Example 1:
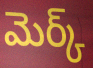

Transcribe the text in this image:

మెర్క్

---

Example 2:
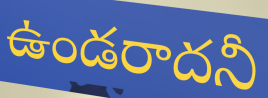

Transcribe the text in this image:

ఉండరాదనీ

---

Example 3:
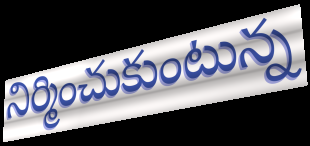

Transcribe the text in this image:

నిర్మించుకుంటున్న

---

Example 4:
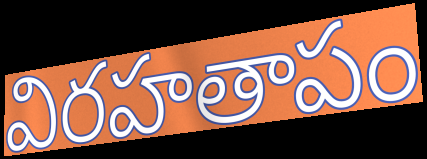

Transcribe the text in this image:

విరహతాపం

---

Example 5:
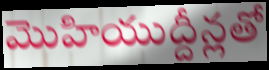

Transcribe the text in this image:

మొహియుద్దీన్లతో